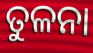
ତୁଳନା